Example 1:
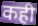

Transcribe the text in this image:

कही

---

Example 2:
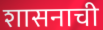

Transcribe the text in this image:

शासनाची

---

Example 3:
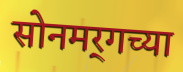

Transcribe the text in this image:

सोनमर्गच्या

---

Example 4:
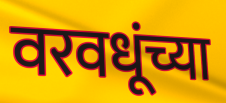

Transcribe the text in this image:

वरवधूंच्या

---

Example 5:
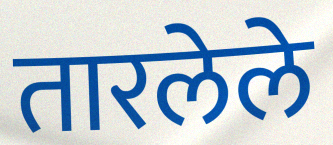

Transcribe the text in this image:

तारलेले